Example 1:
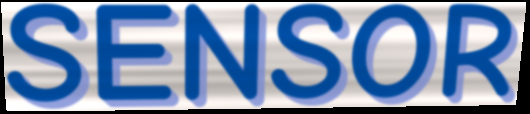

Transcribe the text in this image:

SENSOR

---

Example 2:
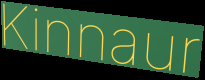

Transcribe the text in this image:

Kinnaur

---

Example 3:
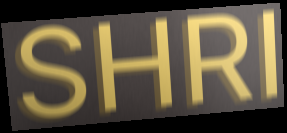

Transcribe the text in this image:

SHRI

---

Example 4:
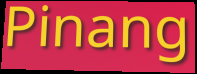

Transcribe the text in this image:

Pinang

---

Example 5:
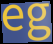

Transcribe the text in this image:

eg